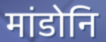
मांडोनि